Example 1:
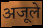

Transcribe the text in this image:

अजूले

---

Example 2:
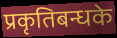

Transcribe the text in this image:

प्रकृतिबन्धके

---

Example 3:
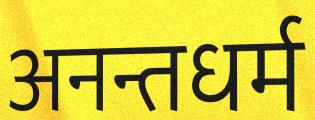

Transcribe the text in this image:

अनन्तधर्म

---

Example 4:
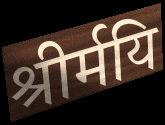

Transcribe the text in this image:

श्रीर्मयि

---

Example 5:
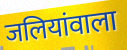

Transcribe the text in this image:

जलियांवाला